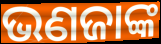
ଭଣଜାଙ୍କ